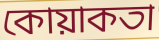
কোয়াকতা